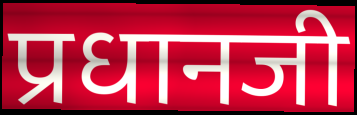
प्रधानजी